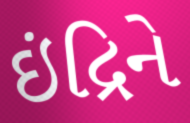
ઇંદ્રિને